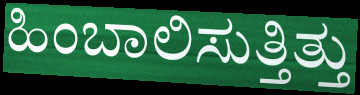
ಹಿಂಬಾಲಿಸುತ್ತಿತ್ತು